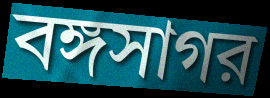
বঙ্গসাগর